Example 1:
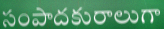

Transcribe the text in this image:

సంపాదకురాలుగా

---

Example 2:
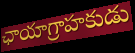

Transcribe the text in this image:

ఛాయాగ్రాహకుడు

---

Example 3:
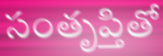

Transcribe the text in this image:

సంతృప్తితో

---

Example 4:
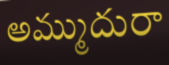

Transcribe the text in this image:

అమ్ముదురా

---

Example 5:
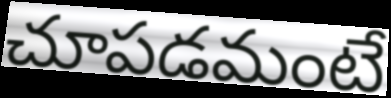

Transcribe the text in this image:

చూపడమంటే